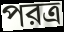
পরত্র